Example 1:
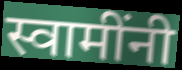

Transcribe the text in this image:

स्वामींनी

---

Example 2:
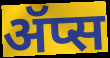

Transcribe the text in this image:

ॲप्स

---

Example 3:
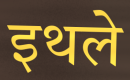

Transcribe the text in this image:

इथले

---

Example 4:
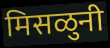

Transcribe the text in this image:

मिसळुनी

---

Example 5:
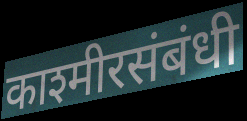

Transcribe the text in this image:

काश्मीरसंबंधी